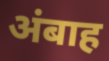
अंबाह